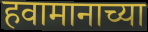
हवामानाच्या